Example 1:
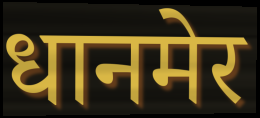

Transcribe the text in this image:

धानमेर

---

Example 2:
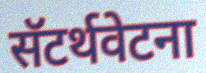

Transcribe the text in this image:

सॅटर्थवेटना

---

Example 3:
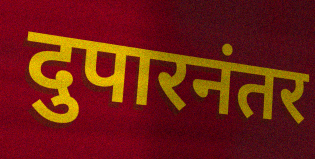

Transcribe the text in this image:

दुपारनंतर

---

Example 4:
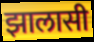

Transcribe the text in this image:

झालासी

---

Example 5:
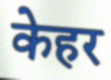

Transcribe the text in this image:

केहर